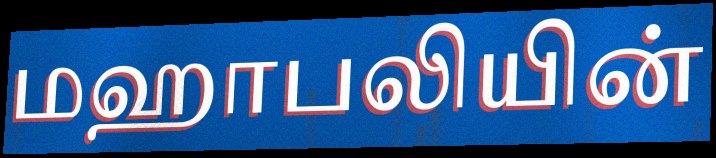
மஹாபலியின்